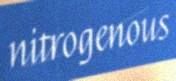
nitrogenous